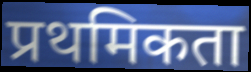
प्रथमिकता